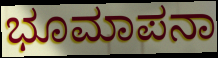
ಭೂಮಾಪನಾ